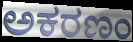
ಅಕರಣಂ